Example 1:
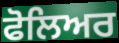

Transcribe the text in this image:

ਫੋਲਿਅਰ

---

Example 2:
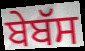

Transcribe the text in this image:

ਬੇਬੱਸ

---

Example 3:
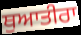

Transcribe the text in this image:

ਥੁਆਤੀਰਾ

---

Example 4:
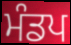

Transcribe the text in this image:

ਮੰਡਪ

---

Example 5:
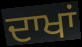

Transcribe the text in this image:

ਦਾਖਾਂ